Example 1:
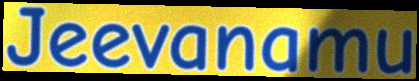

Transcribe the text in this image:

Jeevanamu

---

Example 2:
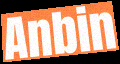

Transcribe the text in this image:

Anbin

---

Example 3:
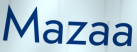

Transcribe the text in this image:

Mazaa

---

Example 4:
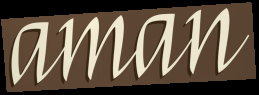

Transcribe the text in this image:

aman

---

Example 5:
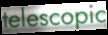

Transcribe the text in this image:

telescopic